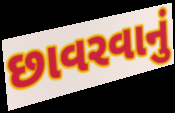
છાવરવાનું